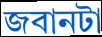
জবানটা